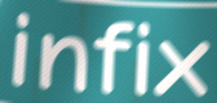
infix